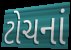
ટોચનાં